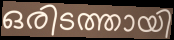
ഒരിടത്തായി